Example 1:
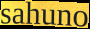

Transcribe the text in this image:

sahuno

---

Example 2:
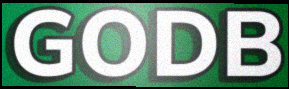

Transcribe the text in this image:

GODB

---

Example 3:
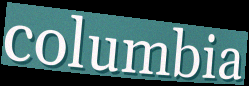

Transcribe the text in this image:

columbia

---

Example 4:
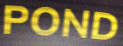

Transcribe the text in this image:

POND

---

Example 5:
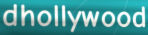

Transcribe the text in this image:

dhollywood